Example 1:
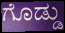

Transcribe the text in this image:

ಗೊಡ್ಡು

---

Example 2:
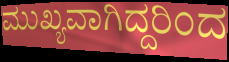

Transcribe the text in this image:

ಮುಖ್ಯವಾಗಿದ್ದರಿಂದ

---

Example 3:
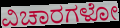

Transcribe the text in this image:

ವಿಚಾರಗಳೋ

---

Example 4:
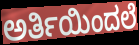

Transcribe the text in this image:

ಅರ್ತಿಯಿಂದಲೆ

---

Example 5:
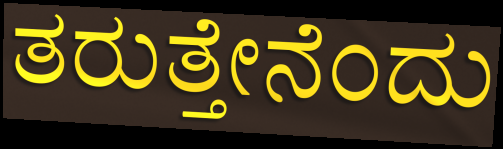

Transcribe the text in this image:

ತರುತ್ತೇನೆಂದು